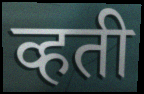
व्हती